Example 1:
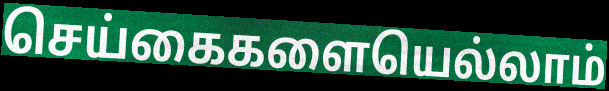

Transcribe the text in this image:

செய்கைகளையெல்லாம்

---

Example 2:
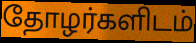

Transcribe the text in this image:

தோழர்களிடம்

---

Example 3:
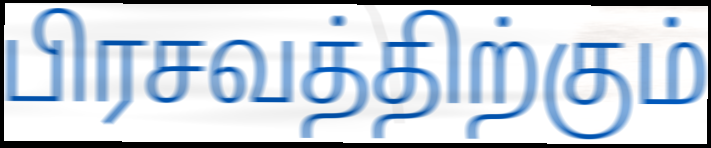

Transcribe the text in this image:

பிரசவத்திற்கும்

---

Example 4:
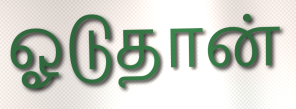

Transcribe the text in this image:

ஓடுதான்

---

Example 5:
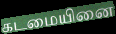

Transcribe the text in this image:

கடமையினை